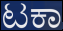
ಟಕಾ